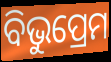
ବିଭୁପ୍ରେମ